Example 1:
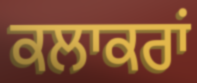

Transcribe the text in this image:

ਕਲਾਕਰਾਂ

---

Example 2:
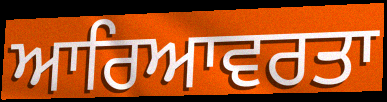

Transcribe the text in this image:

ਆਰਿਆਵਰਤਾ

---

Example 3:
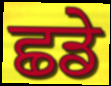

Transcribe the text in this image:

ਛਡੇ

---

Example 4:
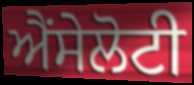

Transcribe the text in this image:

ਐਂਸੇਲੋਟੀ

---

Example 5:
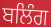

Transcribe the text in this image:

ਬਲਿੰਗ